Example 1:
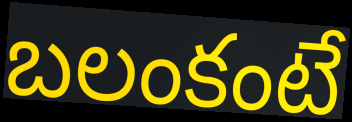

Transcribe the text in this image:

బలంకంటే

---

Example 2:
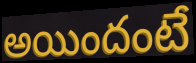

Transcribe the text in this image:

అయిందంటే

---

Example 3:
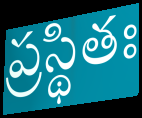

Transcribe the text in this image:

ప్రస్థితః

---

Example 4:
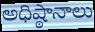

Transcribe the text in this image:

అధిష్ఠానాలు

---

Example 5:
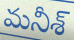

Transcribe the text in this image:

మనీశ్